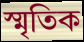
স্মৃতিক